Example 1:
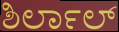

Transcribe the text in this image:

ಶಿರ್ಲಾಲ್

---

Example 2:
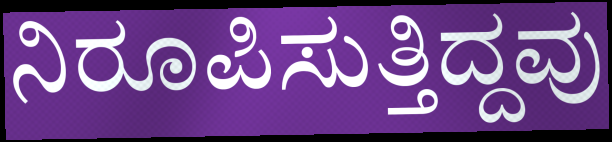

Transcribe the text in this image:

ನಿರೂಪಿಸುತ್ತಿದ್ದವು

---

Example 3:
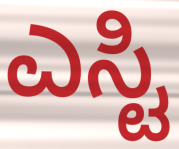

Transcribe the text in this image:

ಎಸ್ಟಿ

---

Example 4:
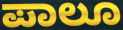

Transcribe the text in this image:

ಪಾಲೂ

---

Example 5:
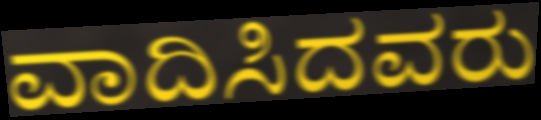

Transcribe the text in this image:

ವಾದಿಸಿದವರು